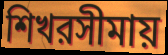
শিখরসীমায়